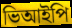
ভিআইপি